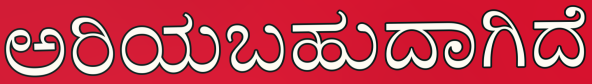
ಅರಿಯಬಹುದಾಗಿದೆ